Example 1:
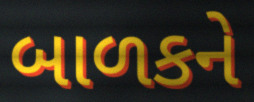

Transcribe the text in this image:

બાળકને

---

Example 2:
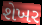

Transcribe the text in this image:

શેખર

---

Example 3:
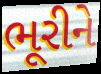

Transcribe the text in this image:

ભૂરીને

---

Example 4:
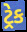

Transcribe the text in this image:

ટ્રેક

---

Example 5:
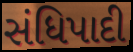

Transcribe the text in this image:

સંધિપાદી